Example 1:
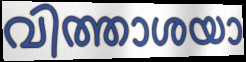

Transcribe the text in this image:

വിത്താശയാ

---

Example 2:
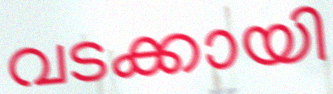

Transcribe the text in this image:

വടക്കായി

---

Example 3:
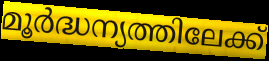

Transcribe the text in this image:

മൂർദ്ധന്യത്തിലേക്ക്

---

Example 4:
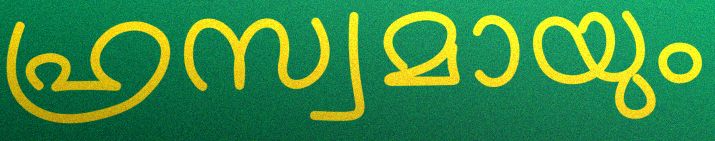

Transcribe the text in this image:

ഹ്രസ്വമായും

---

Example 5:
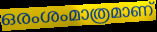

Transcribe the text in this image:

ഒരംശംമാത്രമാണ്